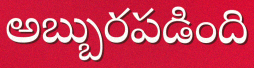
అబ్బురపడింది